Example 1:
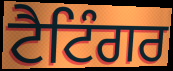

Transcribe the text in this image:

ਟੈਟਿੰਗਰ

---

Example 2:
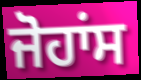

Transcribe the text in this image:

ਜੋਹਾਂਸ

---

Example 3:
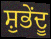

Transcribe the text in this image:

ਸ਼ੁਭੇਂਦੂ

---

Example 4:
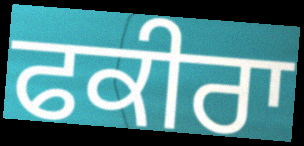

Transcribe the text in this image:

ਫਕੀਰਾ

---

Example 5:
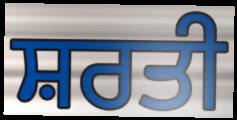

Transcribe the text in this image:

ਸ਼ਰਤੀ